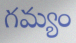
గమ్యం